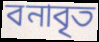
বনাবৃত